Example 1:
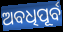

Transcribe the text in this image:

ଅବଧିପୂର୍ବ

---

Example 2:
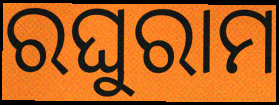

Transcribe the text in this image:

ରଘୁରାମ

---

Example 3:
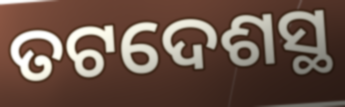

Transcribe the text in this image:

ତଟଦେଶସ୍ଥ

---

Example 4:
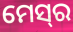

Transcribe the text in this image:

ମେସ୍‍ର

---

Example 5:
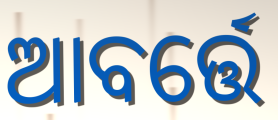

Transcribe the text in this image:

ଆବର୍ତ୍ତେ